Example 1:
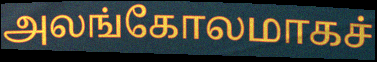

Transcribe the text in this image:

அலங்கோலமாகச்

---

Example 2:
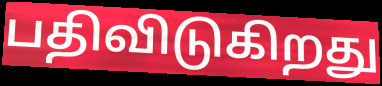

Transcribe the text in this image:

பதிவிடுகிறது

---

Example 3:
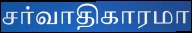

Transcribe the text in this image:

சர்வாதிகாரமா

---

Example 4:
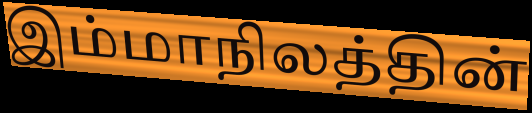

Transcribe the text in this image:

இம்மாநிலத்தின்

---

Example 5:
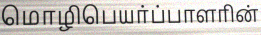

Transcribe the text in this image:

மொழிபெயர்ப்பாளரின்